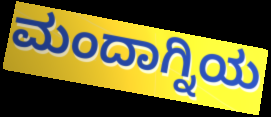
ಮಂದಾಗ್ನಿಯ